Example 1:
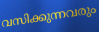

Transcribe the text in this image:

വസിക്കുന്നവരും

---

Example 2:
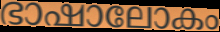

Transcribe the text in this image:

ഭാഷാലോകം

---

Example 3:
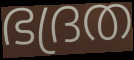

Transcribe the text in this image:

ഭദ്രത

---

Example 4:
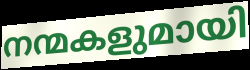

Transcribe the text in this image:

നന്മകളുമായി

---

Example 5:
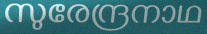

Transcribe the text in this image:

സുരേന്ദ്രനാഥ